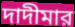
দাদীমার